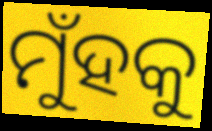
ମୁଁହକୁ